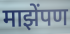
माझेंपण